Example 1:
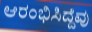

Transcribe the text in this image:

ಆರಂಭಿಸಿದ್ದೆವು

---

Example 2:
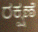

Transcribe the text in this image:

ರಕ್ಷಣೆ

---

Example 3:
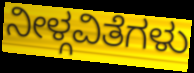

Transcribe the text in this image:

ನೀಳ್ಗವಿತೆಗಳು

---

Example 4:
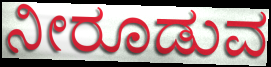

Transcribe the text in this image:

ನೀರೂಡುವ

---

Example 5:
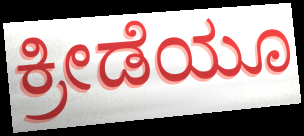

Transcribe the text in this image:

ಕ್ರೀಡೆಯೂ